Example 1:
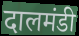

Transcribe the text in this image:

दालमंडी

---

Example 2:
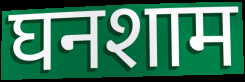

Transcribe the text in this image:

घनशाम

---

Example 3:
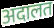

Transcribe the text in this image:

अदालत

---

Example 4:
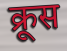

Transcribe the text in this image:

क्रूस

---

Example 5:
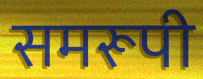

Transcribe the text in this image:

समरूपी